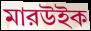
মারউইক